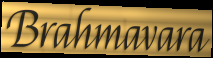
Brahmavara